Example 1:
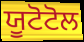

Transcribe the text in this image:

ਯੂਟੋਟੋਲ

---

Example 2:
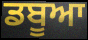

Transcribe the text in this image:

ਡਬੂਆ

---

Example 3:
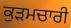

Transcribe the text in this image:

ਕੁੜਮਚਾਰੀ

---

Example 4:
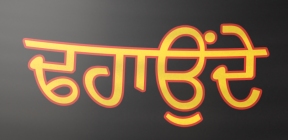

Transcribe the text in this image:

ਢਹਾਉਂਦੇ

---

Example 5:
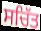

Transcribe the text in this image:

ਸਚਿੱਤ